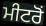
ਮੀਟਰੋਂ